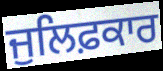
ਜੁਲਿਫ਼ਕਾਰ